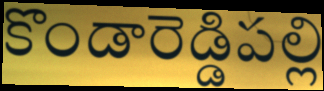
కొండారెడ్డిపల్లి